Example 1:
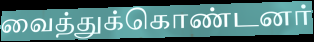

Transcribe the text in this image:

வைத்துக்கொண்டனர்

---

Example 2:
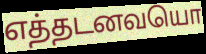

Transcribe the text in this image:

எத்தடனவயொ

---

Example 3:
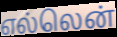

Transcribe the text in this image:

எல்லென்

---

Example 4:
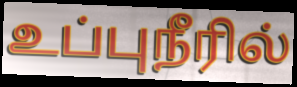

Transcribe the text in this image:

உப்புநீரில்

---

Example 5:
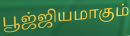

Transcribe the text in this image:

பூஜ்ஜியமாகும்